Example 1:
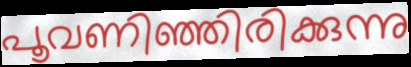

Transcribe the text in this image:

പൂവണിഞ്ഞിരിക്കുന്നു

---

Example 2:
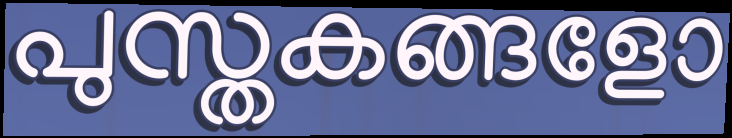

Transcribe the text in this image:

പുസ്തകങ്ങളോ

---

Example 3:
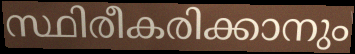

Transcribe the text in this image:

സ്ഥിരീകരിക്കാനും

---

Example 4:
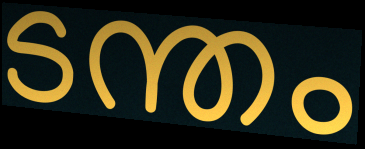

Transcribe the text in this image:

ടന്തം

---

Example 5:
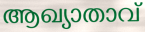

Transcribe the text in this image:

ആഖ്യാതാവ്